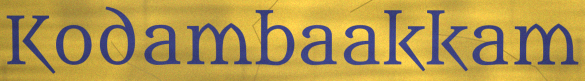
Kodambaakkam